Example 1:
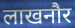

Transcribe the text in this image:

लाखनौर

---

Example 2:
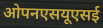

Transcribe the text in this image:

ओपनएसयूएसई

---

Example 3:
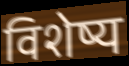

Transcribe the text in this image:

विशेष्य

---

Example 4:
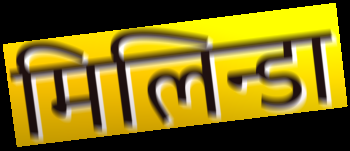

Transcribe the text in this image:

मिलिन्डा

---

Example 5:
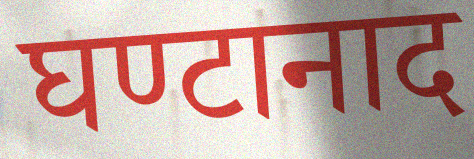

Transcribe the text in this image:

घण्टानाद